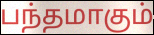
பந்தமாகும்